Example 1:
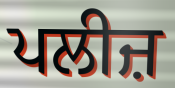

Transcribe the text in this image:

ਪਲੀਜ਼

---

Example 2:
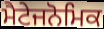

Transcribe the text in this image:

ਮੈਟੇਜਨੋਮਿਕ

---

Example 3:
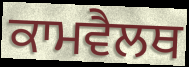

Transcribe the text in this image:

ਕਾਮਵੈਲਥ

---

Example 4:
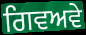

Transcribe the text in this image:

ਗਿਵਅਵੇ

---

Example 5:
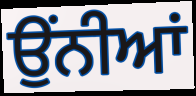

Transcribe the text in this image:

ਉੰਨੀਆਂ